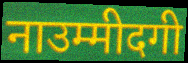
नाउम्मीदगी